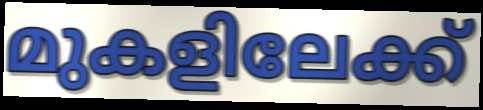
മുകളിലേക്ക്